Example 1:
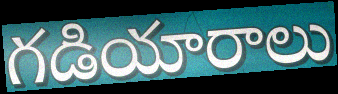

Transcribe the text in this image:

గడియారాలు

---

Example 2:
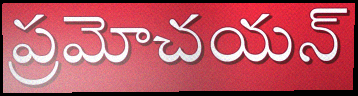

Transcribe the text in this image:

ప్రమోచయన్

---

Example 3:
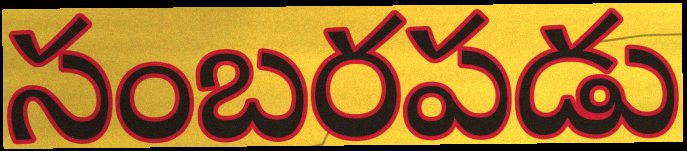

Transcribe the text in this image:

సంబరపడు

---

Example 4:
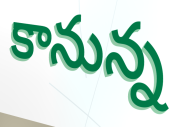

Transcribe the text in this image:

కానున్న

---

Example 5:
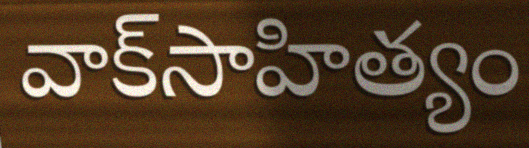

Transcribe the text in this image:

వాక్‌సాహిత్యం